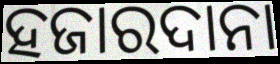
ହଜାରଦାନା